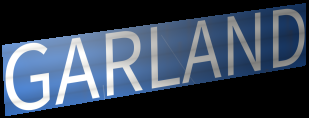
GARLAND